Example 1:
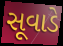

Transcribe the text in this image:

સૂવાડે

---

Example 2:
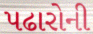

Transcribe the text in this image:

પઢારોની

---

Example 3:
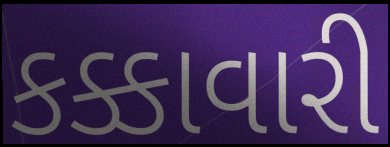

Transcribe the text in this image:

કક્કાવારી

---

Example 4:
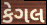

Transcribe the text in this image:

કેગલ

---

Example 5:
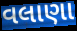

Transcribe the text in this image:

વલાણા